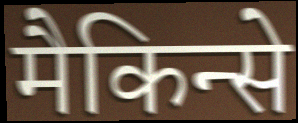
मैकिन्से